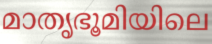
മാതൃഭൂമിയിലെ